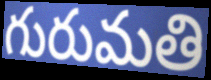
గురుమతి